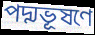
পদ্মভূষণে